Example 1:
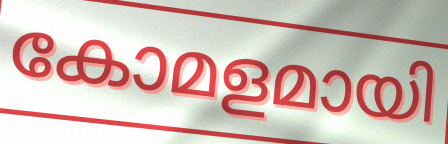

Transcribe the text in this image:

കോമളമായി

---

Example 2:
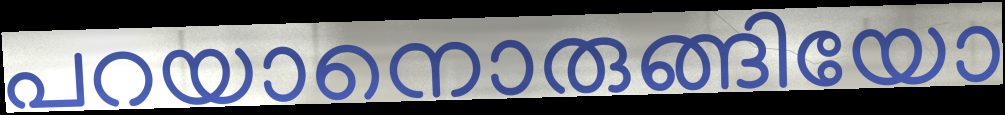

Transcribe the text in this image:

പറയാനൊരുങ്ങിയോ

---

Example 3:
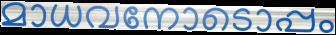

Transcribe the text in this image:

മാധവനോടൊപ്പം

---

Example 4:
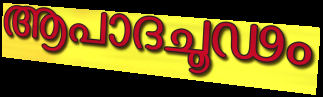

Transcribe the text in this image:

ആപാദചൂഢം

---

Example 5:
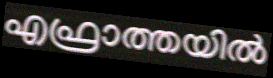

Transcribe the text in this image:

എഫ്രാത്തയിൽ